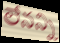
లేనన్ని